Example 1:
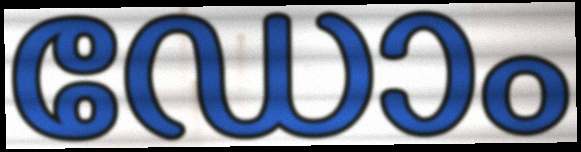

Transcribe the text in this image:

ഡോം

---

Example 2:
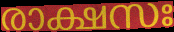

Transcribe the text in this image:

രാക്ഷസഃ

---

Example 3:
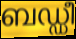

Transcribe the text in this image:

ബഡ്ഡീ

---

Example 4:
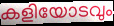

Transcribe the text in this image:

കളിയോടവും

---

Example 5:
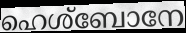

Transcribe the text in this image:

ഹെശ്ബോനേ